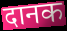
दानक